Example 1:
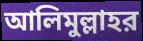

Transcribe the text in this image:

আলিমুল্লাহর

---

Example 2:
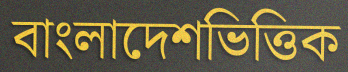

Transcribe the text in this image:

বাংলাদেশভিত্তিক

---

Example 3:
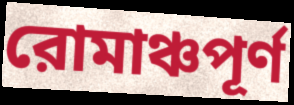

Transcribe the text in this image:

রোমাঞ্চপূর্ণ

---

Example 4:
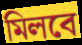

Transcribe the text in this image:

মিলবে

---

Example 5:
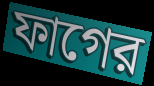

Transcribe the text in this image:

ফাগের